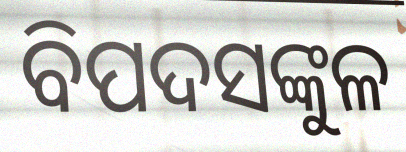
ବିପଦସଙ୍କୁଳ